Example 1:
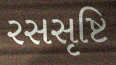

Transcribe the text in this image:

રસસૃષ્ટિ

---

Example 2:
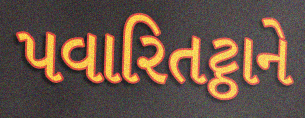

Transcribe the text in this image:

પવારિતટ્ઠાને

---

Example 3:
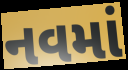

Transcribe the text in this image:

નવમાં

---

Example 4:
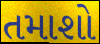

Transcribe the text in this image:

તમાશો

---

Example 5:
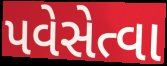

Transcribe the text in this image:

પવેસેત્વા